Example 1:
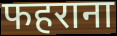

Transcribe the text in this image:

फहराना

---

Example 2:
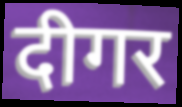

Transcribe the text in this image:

दीगर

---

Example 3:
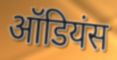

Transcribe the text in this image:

ऑडियंस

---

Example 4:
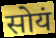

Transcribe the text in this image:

सोयं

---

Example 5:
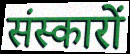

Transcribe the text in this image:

संस्कारों